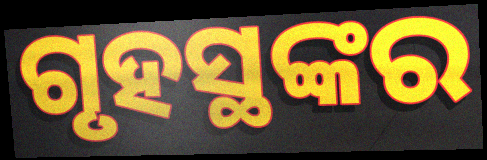
ଗୃହସ୍ଥଙ୍କର